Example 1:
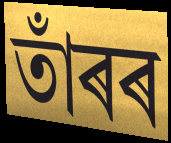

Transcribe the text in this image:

তাঁৰৰ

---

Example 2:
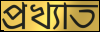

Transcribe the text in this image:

প্ৰখ্যাত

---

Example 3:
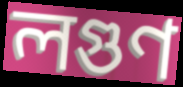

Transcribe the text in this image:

লগুণ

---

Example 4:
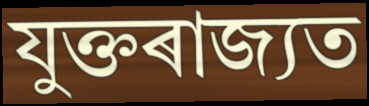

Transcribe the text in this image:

যুক্তৰাজ্যত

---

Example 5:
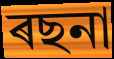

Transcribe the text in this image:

ৰছনা